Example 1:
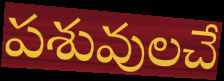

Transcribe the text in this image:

పశువులచే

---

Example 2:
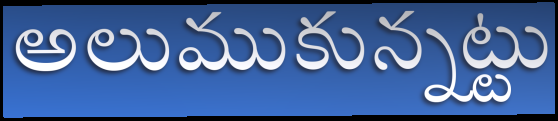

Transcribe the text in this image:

అలుముకున్నట్టు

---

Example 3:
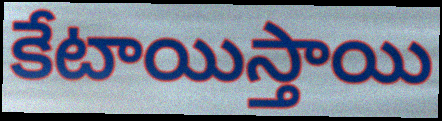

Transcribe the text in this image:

కేటాయిస్తాయి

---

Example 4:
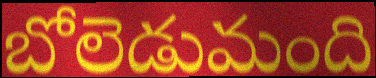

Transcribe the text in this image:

బోలెడుమంది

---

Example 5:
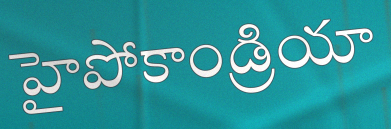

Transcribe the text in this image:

హైపోకాండ్రియా